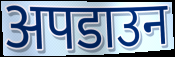
अपडाउन